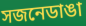
সজনেডাঙা